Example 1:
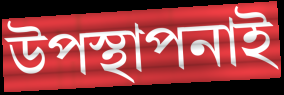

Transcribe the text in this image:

উপস্থাপনাই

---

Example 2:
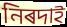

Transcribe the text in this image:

নিৰদাই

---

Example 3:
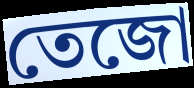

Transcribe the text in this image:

তেজো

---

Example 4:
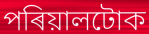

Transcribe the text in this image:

পৰিয়ালটোক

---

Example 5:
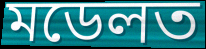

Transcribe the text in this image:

মডেলত